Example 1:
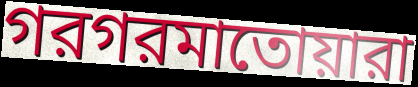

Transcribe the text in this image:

গরগরমাতোয়ারা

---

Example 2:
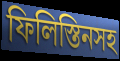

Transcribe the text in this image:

ফিলিস্তিনসহ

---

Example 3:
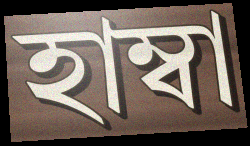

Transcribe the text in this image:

হাম্বা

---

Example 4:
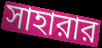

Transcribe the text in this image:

সাহারার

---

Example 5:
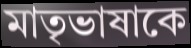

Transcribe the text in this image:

মাতৃভাষাকে